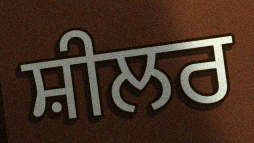
ਸ਼ੀਲਰ